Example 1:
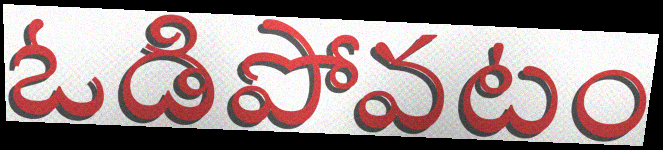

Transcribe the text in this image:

ఓడిపోవటం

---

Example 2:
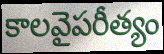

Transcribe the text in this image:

కాలవైపరీత్యం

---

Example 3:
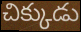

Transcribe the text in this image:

చిక్కుడు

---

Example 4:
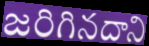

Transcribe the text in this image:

జరిగినదాని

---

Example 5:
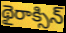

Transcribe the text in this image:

థైరాక్సిన్